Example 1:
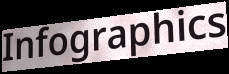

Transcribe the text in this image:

Infographics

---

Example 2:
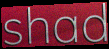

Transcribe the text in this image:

shad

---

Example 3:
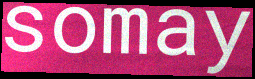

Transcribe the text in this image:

somay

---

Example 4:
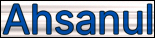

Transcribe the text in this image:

Ahsanul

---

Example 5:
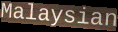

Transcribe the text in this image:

Malaysian